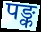
पङ्क